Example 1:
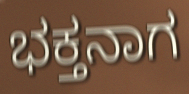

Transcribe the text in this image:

ಭಕ್ತನಾಗ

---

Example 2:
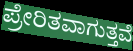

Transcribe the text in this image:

ಪ್ರೇರಿತವಾಗುತ್ತವೆ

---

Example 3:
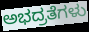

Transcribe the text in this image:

ಅಭದ್ರತೆಗಳು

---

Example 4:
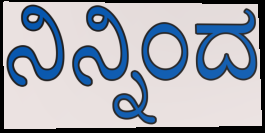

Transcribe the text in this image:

ನಿನ್ನಿಂದ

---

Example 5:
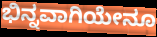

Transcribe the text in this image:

ಭಿನ್ನವಾಗಿಯೇನೂ